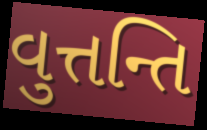
વુત્તન્તિ